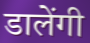
डालेंगी